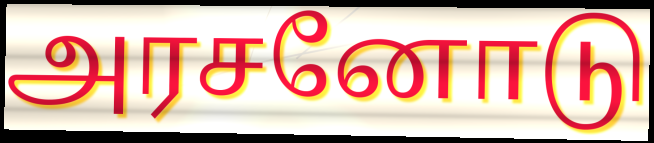
அரசனோடு